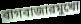
বাগবাজারমুখো